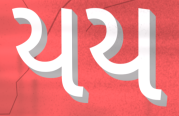
યય